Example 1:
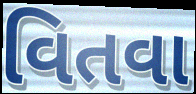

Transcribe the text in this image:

વિતવા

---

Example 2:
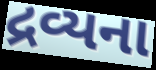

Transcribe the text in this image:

દ્રવ્યના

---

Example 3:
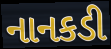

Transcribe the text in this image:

નાનકડી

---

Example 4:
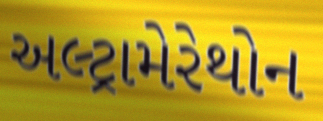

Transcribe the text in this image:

અલ્ટ્રામેરેથોન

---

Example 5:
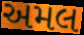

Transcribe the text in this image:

અમલ